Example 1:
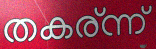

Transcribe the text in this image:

തകര്ന്ന്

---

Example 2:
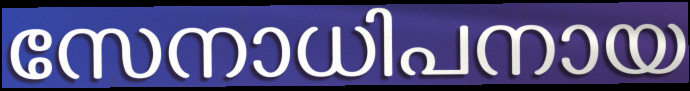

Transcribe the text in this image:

സേനാധിപനായ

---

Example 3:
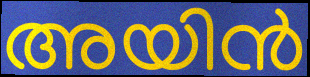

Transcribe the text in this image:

അയിൻ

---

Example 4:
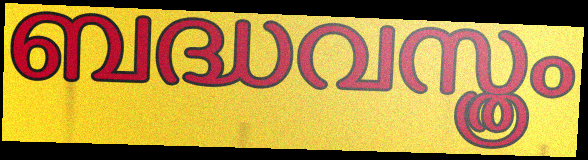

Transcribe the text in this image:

ബദ്ധവസ്ത്രം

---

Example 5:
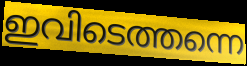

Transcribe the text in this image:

ഇവിടെത്തന്നെ